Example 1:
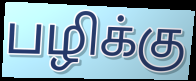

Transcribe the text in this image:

பழிக்கு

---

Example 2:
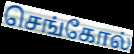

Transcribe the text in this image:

செங்கோல்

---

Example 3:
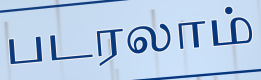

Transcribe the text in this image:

படரலாம்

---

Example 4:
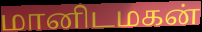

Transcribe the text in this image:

மானிடமகன்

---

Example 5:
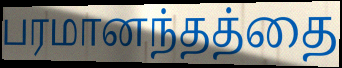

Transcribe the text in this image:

பரமானந்தத்தை